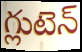
గ్లుటెన్